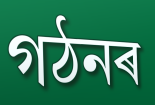
গঠনৰ